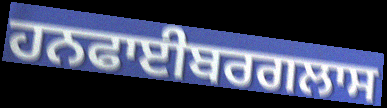
ਹਨਫਾਈਬਰਗਲਾਸ